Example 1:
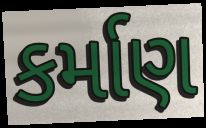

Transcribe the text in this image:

કર્માણ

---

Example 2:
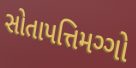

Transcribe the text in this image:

સોતાપત્તિમગ્ગો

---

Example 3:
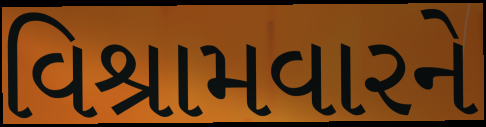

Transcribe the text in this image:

વિશ્રામવારને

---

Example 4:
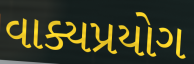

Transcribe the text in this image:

વાક્યપ્રયોગ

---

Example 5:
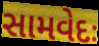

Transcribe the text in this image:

સામવેદઃ